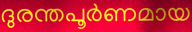
ദുരന്തപൂർണമായ